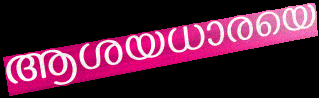
ആശയധാരയെ